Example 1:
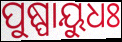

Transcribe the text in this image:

ପୁଷ୍ପାୟୁଧଃ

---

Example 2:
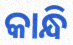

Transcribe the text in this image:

କାନ୍ଧି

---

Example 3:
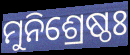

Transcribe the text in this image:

ମୁନିଶ୍ରେଷ୍ଠଃ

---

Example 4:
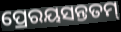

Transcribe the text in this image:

ପ୍ରେରୟସନ୍ତତମ୍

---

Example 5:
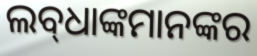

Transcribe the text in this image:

ଲବ୍‌ଧାଙ୍କମାନଙ୍କର